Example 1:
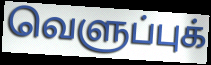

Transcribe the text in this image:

வெளுப்புக்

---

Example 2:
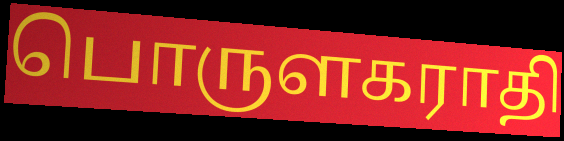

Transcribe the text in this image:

பொருளகராதி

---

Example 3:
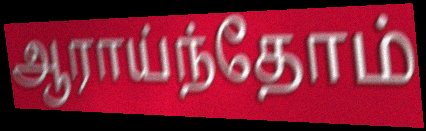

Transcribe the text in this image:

ஆராய்ந்தோம்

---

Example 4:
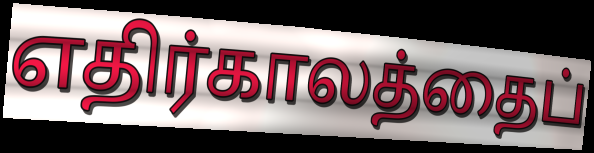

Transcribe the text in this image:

எதிர்காலத்தைப்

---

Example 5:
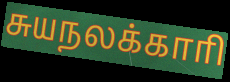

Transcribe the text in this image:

சுயநலக்காரி